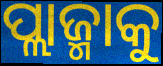
ପ୍ଲାଜ୍ମାକୁ